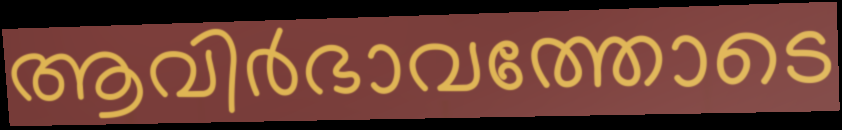
ആവിർഭാവത്തോടെ